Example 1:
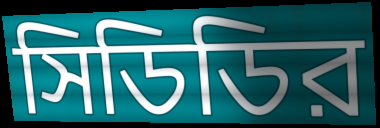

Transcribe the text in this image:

সিডিডির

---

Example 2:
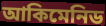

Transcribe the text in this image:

আকিমেনিড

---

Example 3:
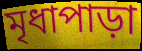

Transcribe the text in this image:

মৃধাপাড়া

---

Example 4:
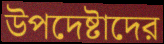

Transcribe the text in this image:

উপদেষ্টাদের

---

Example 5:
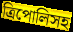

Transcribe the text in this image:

ত্রিপোলিসহ